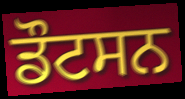
ਡੌਟਸਨ